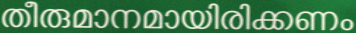
തീരുമാനമായിരിക്കണം